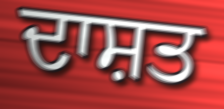
ਦਾਸ਼ਤ